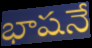
భాషనే